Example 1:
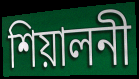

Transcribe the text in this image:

শিয়ালনী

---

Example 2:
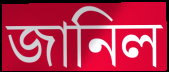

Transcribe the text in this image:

জানিল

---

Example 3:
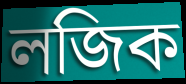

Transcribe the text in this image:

লজিক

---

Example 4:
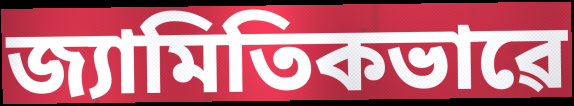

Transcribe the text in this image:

জ্যামিতিকভাৱে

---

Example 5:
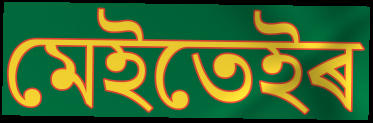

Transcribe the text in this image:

মেইতেইৰ